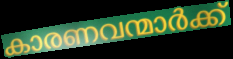
കാരണവന്മാർക്ക്